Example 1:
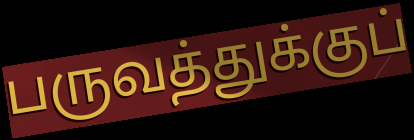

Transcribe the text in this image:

பருவத்துக்குப்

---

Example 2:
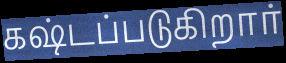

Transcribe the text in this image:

கஷ்டப்படுகிறார்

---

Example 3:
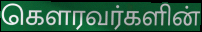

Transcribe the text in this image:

கௌரவர்களின்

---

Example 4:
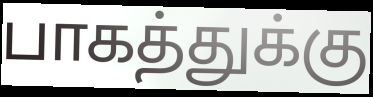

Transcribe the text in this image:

பாகத்துக்கு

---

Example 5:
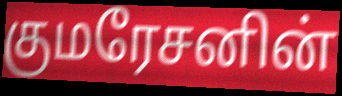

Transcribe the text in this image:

குமரேசனின்